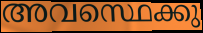
അവസ്ഥെക്കു